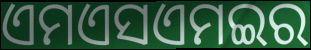
ଏମଏସଏମଇର